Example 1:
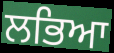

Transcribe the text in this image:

ਲਭਿਆ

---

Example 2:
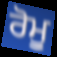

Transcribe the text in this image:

ਰੋਮੂ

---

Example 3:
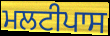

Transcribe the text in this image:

ਮਲਟੀਪਾਸ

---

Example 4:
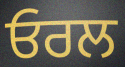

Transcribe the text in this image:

ਓਰਲ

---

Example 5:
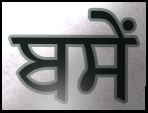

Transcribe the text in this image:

ਬਸੇਂ